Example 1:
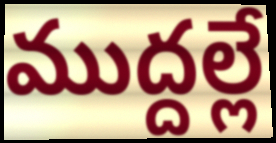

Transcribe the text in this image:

ముద్దల్లే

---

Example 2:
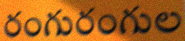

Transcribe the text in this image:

రంగురంగుల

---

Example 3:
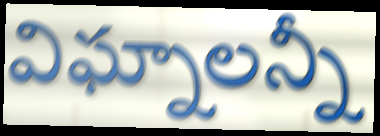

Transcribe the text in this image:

విఘ్నాలన్నీ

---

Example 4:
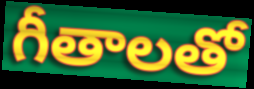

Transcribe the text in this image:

గీతాలతో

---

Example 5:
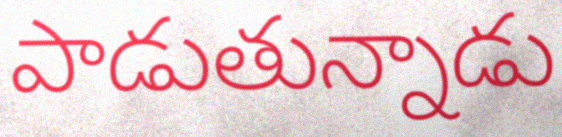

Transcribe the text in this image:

పాడుతున్నాడు